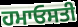
ਹਮਾਓਸਤੀ